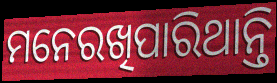
ମନେରଖିପାରିଥାନ୍ତି